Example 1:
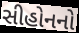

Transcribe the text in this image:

સીહોનનો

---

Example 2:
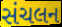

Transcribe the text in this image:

સંચલન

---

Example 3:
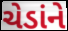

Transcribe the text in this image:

ચેડાંને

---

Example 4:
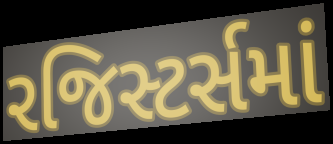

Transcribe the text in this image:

રજિસ્ટર્સમાં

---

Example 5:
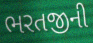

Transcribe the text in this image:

ભરતજીની